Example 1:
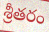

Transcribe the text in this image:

శ్రీతరం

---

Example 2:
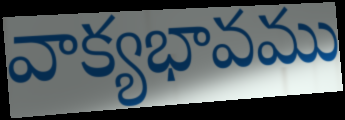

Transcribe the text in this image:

వాక్యభావము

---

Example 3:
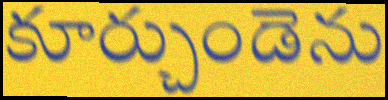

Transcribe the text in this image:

కూర్చుండెను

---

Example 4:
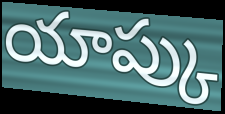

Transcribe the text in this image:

యాప్కు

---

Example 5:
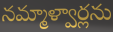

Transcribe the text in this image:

నమ్మాళ్వార్లను